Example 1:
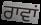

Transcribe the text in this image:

ਰਾਵਾਂ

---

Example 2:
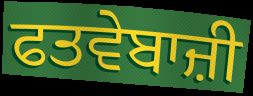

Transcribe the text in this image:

ਫਤਵੇਬਾਜ਼ੀ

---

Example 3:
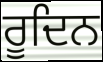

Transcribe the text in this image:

ਰੂਦਿਨ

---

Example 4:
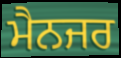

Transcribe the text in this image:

ਮੈਨਜਰ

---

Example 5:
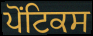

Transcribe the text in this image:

ਪੋਂਟਿਕਸ